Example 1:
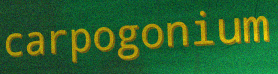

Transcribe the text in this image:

carpogonium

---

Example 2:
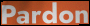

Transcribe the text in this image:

Pardon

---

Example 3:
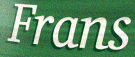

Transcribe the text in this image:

Frans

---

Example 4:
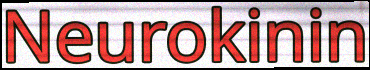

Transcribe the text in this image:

Neurokinin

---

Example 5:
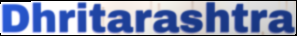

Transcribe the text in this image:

Dhritarashtra